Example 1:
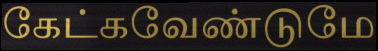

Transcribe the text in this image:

கேட்கவேண்டுமே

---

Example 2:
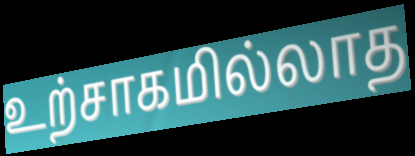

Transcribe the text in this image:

உற்சாகமில்லாத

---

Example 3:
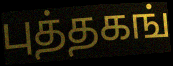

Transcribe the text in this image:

புத்தகங்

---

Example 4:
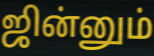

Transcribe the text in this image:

ஜின்னும்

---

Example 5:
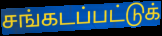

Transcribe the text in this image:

சங்கடப்பட்டுக்